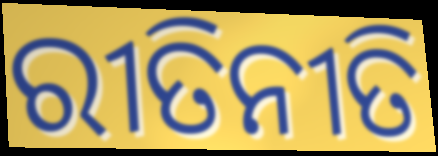
ରୀତିନୀତି